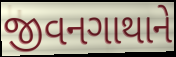
જીવનગાથાને